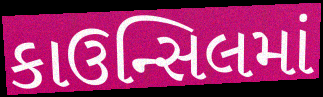
કાઉન્સિલમાં